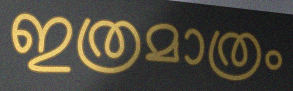
ഇത്രമാത്രം